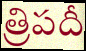
త్రిపదీ